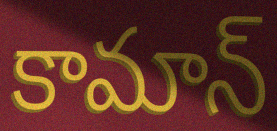
కామాన్